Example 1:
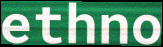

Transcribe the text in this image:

ethno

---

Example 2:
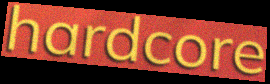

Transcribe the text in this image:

hardcore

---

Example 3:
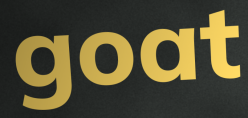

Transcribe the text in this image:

goat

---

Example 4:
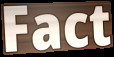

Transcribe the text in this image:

Fact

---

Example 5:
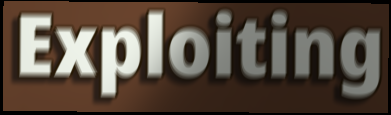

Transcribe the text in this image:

Exploiting